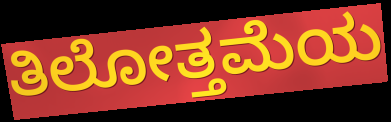
ತಿಲೋತ್ತಮೆಯ